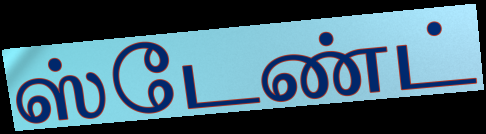
ஸ்டேண்ட்